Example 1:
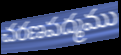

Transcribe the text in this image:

చరణపద్మము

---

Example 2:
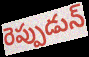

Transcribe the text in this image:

రెప్పుడున్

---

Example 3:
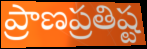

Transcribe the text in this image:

ప్రాణప్రతిష్ట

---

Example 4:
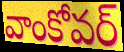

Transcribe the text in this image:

వాంకోవర్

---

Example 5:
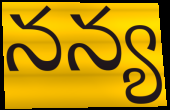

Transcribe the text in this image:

నన్య